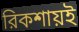
রিকশায়ই